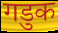
गडुक